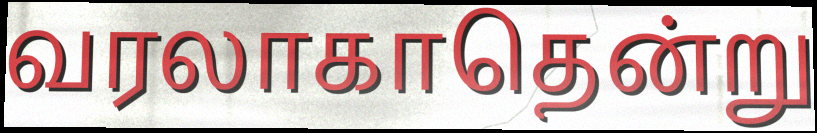
வரலாகாதென்று